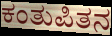
ಕಂತುಪಿತನ